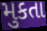
મુકતા